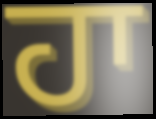
ਹਾ